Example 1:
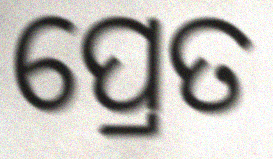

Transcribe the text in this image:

ପ୍ରେତ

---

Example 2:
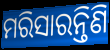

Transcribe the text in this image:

ମରିସାରନ୍ତିଣି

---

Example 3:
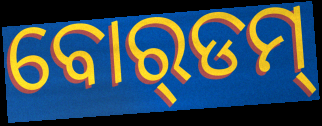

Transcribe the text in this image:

ବୋର୍‌ଡମ୍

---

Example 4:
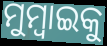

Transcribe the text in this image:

ମୁମ୍ୱାଇକୁ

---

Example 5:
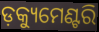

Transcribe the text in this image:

ଡ଼କ୍ୟୁମେଣ୍ଟରି